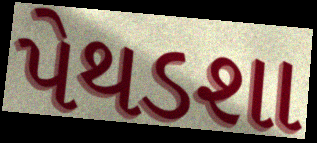
પેથડશા